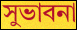
সুভাবনা